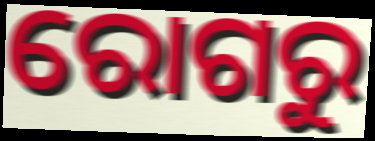
ରୋଗରୁ